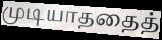
முடியாததைத்